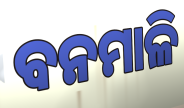
ବନମାଳି